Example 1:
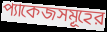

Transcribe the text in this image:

প্যাকেজসমূহের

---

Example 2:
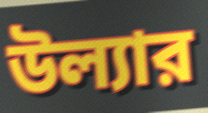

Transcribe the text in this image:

উল্যার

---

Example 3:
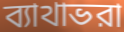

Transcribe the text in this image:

ব্যাথাভরা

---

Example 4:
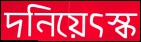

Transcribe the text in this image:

দনিয়েৎস্ক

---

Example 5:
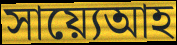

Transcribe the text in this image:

সায়্যেআহ